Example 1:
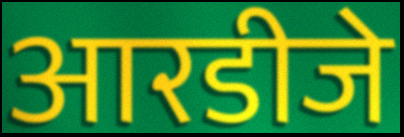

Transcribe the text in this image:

आरडीजे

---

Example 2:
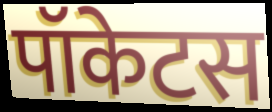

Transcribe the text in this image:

पॉकेटस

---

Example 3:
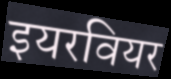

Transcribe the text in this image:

इयरवियर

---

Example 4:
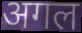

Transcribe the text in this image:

अगल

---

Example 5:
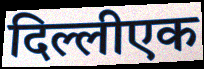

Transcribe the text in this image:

दिल्लीएक